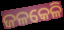
ଜଳକେଳି